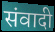
संवादी